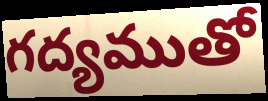
గద్యముతో